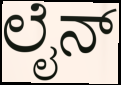
ಲೈನ್